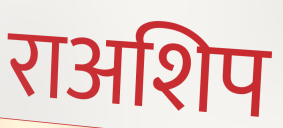
राअशिप